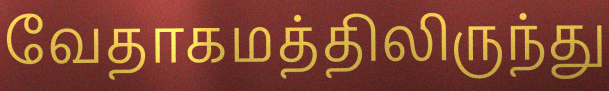
வேதாகமத்திலிருந்து